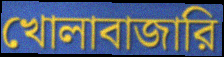
খোলাবাজারি